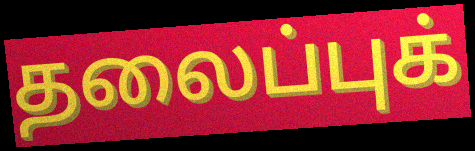
தலைப்புக்